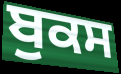
ਬੁਕਸ